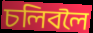
চলিবলৈ